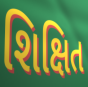
શિક્ષિત